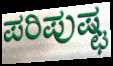
ಪರಿಪುಷ್ಟ